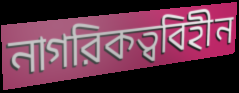
নাগরিকত্ববিহীন